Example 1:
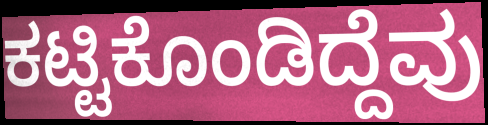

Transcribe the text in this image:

ಕಟ್ಟಿಕೊಂಡಿದ್ದೆವು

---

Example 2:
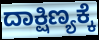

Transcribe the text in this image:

ದಾಕ್ಷಿಣ್ಯಕ್ಕೆ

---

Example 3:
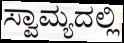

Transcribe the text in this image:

ಸ್ವಾಮ್ಯದಲ್ಲಿ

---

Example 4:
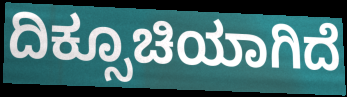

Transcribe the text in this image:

ದಿಕ್ಸೂಚಿಯಾಗಿದೆ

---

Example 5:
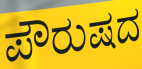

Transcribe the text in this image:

ಪೌರುಷದ